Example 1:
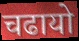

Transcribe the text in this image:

चढायो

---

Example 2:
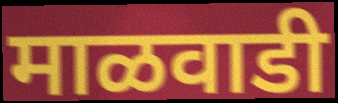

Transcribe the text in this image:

माळवाडी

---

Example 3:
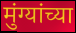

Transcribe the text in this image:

मुंग्यांच्या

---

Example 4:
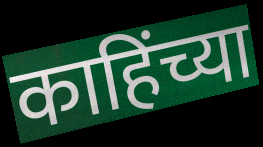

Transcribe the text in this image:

काहिंच्या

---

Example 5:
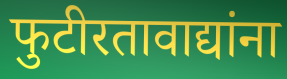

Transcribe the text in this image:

फुटीरतावाद्यांना